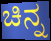
ಚಿನ್ನ